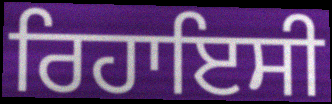
ਰਿਹਾਇਸੀ